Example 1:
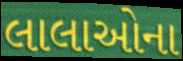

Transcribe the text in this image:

લાલાઓના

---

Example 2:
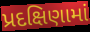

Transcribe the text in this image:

પ્રદક્ષિણામાં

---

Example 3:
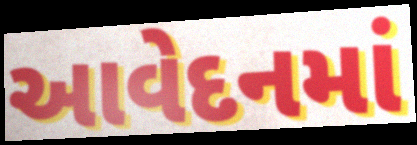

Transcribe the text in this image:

આવેદનમાં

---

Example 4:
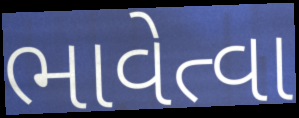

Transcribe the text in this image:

ભાવેત્વા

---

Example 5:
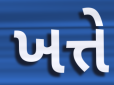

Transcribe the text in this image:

ખત્તે